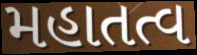
મહાતત્વ